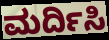
ಮರ್ದಿಸಿ